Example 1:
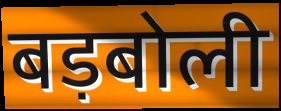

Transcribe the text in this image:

बड़बोली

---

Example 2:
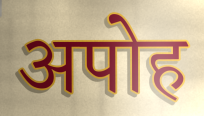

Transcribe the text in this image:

अपोह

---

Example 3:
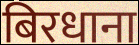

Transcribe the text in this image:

बिरधाना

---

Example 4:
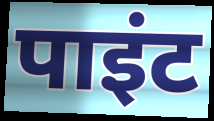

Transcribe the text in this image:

पाइंट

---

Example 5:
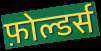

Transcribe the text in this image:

फ़ोल्डर्स